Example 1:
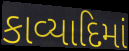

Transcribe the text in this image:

કાવ્યાદિમાં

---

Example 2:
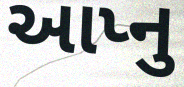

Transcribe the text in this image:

આપ્નુ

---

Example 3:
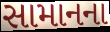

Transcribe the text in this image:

સામાનના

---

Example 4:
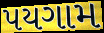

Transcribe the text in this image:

પયગામ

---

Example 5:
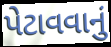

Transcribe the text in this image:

પેટાવવાનું